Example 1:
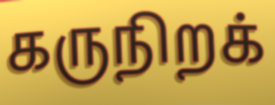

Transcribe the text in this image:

கருநிறக்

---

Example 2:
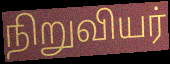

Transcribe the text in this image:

நிறுவியர்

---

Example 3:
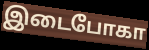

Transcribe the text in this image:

இடைபோகா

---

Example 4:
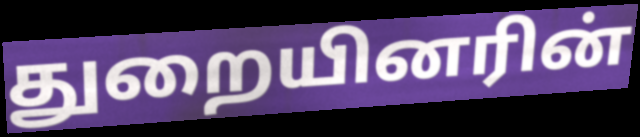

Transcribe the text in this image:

துறையினரின்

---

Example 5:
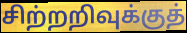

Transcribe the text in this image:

சிற்றறிவுக்குத்